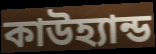
কাউহ্যান্ড